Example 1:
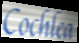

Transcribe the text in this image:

Cochlea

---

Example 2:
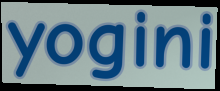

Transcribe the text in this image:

yogini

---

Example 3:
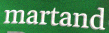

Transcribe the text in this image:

martand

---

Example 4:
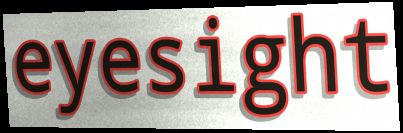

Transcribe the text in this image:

eyesight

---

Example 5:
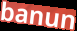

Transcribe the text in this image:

banun